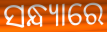
ସନ୍ଧ୍ୟାରେ